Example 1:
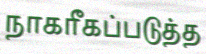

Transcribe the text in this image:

நாகரீகப்படுத்த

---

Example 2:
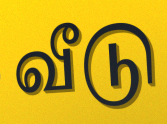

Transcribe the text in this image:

வீடு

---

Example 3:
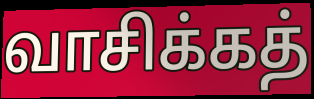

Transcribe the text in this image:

வாசிக்கத்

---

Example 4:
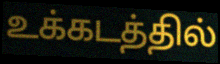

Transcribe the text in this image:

உக்கடத்தில்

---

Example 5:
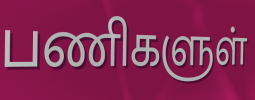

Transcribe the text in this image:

பணிகளுள்